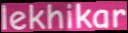
lekhikar